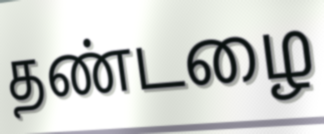
தண்டழை